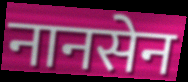
नानसेन